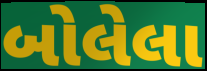
બોલેલા